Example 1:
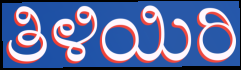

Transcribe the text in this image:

ತಿಳಿಯಿರಿ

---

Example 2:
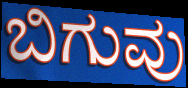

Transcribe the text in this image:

ಬಿಗುವು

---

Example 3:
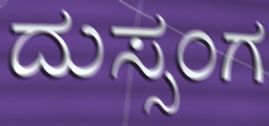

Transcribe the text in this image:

ದುಸ್ಸಂಗ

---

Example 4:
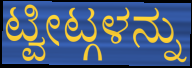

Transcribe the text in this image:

ಟ್ವೀಟ್ಗಳನ್ನು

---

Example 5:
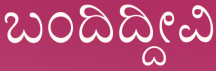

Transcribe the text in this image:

ಬಂದಿದ್ದೀವಿ